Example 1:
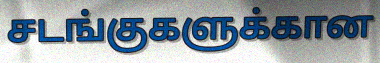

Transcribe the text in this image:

சடங்குகளுக்கான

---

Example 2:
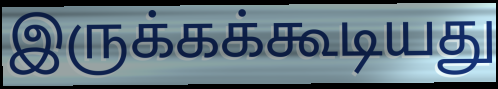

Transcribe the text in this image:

இருக்கக்கூடியது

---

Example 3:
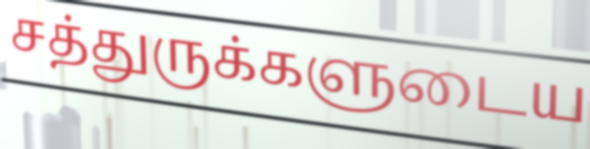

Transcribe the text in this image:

சத்துருக்களுடைய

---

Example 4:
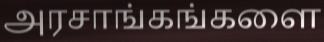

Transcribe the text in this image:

அரசாங்கங்களை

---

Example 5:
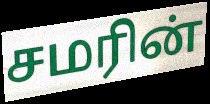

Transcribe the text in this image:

சமரின்